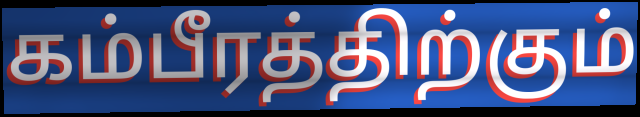
கம்பீரத்திற்கும்